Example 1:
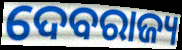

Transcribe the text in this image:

ଦେବରାଜ୍ୟ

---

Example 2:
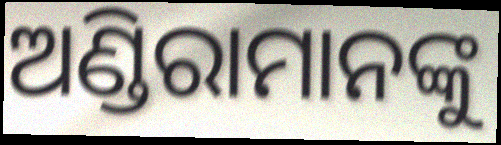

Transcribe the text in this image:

ଅଣ୍ଡିରାମାନଙ୍କୁ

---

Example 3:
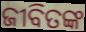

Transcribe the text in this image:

ଜୀବିତଙ୍କ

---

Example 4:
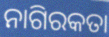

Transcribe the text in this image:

ନାଗିରକତା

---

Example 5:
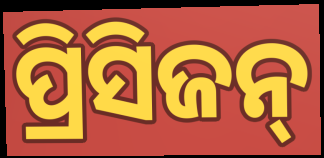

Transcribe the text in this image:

ପ୍ରିସିଜନ୍